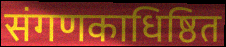
संगणकाधिष्ठित